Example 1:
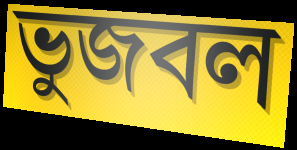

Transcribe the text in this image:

ভুজবল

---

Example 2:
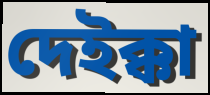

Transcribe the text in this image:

দেইক্কা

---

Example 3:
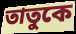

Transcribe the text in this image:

তাতুকে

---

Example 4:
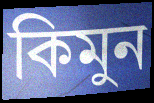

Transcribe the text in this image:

কিমুন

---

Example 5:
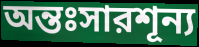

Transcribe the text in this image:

অন্তঃসারশূন্য